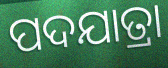
ପଦଯାତ୍ରା